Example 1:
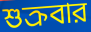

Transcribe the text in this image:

শুক্রবার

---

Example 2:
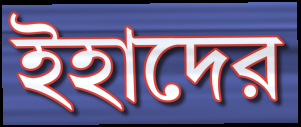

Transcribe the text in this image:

ইহাদের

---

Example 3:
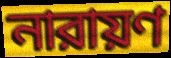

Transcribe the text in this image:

নারায়ণ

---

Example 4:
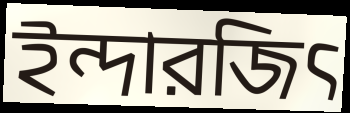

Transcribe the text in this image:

ইন্দারজিৎ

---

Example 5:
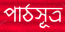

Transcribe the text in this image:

পাঠসূত্র